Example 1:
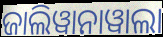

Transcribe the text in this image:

ଜାଲିୱାନାୱାଲା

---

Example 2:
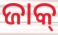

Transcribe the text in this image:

ଜାକ୍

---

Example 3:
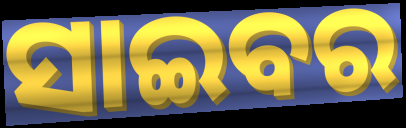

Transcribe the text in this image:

ସାଇବର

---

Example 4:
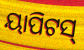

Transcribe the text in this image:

ୟାପିଟସ୍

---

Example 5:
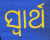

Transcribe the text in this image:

ସ୍ୱାର୍ଥ